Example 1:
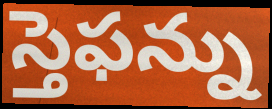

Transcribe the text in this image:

స్తెఫన్ను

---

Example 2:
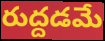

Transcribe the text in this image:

రుద్దడమే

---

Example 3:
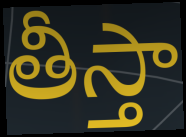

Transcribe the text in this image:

తీస్తా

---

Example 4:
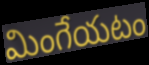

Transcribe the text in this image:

మింగేయటం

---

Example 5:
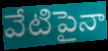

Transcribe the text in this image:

వేటిపైనా